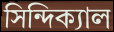
সিন্দিক্যাল